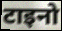
टाइनो